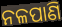
ନଳପାଣି